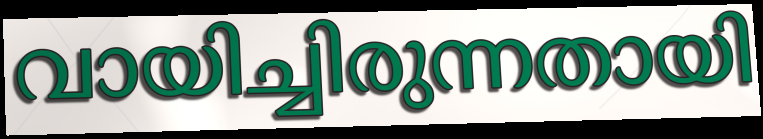
വായിച്ചിരുന്നതായി